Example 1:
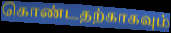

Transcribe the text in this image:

கொண்டதற்காகவும்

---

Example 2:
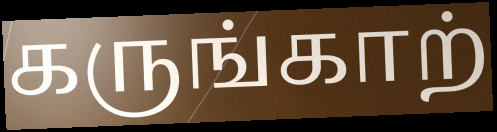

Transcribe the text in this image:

கருங்காற்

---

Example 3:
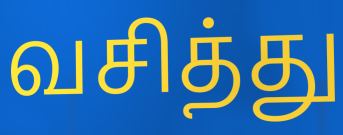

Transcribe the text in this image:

வசித்து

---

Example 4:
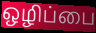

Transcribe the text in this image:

ஒழிப்பை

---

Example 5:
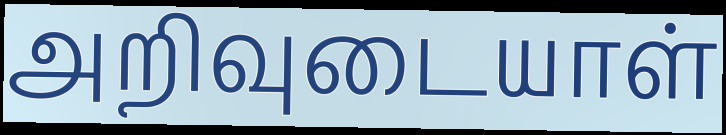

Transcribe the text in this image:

அறிவுடையாள்